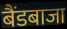
बैंडबाजा